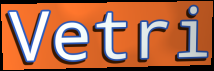
Vetri